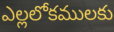
ఎల్లలోకములకు